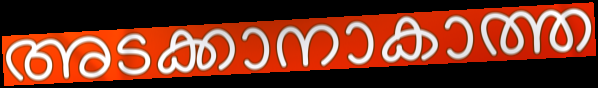
അടക്കാനാകാത്ത